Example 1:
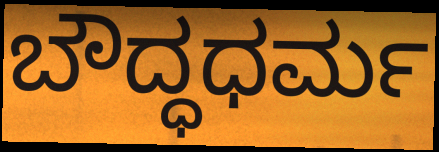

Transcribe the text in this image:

ಬೌದ್ಧಧರ್ಮ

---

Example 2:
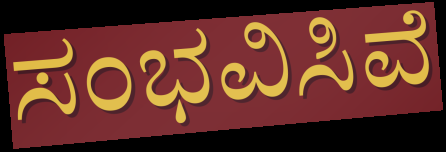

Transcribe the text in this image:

ಸಂಭವಿಸಿವೆ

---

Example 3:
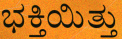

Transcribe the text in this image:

ಭಕ್ತಿಯಿತ್ತು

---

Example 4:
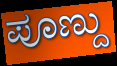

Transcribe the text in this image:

ಪೂಣ್ದು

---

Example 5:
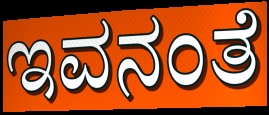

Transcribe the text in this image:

ಇವನಂತೆ